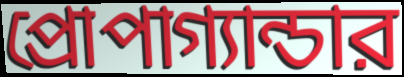
প্রোপাগ্যান্ডার